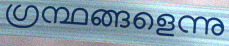
ഗ്രന്ഥങ്ങളെന്നു